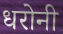
धरोनी